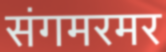
संगमरमर